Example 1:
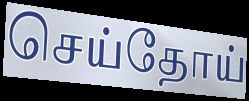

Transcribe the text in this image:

செய்தோய்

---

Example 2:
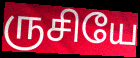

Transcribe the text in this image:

ருசியே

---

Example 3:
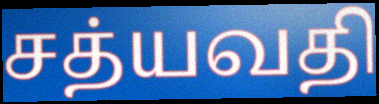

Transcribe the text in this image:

சத்யவதி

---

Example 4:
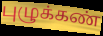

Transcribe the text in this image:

புழுக்கண்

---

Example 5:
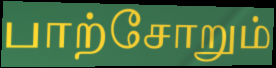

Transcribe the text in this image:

பாற்சோறும்